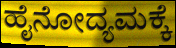
ಹೈನೋದ್ಯಮಕ್ಕೆ